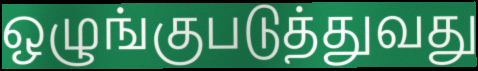
ஒழுங்குபடுத்துவது